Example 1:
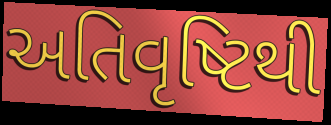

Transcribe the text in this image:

અતિવૃષ્ટિથી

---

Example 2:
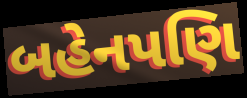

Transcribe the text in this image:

બહેનપણિ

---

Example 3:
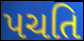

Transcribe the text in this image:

પચતિ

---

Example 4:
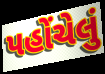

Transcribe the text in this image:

પહોંચેલું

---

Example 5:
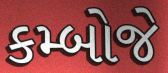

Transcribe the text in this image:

કમ્બોજે